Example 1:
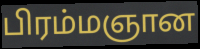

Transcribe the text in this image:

பிரம்மஞான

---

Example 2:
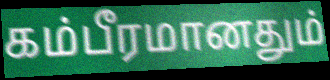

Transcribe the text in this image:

கம்பீரமானதும்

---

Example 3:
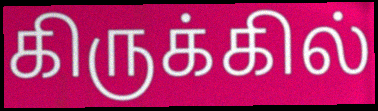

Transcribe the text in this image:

கிருக்கில்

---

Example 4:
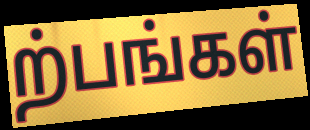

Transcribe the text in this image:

ற்பங்கள்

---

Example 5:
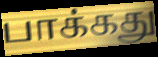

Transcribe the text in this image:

பாக்கது